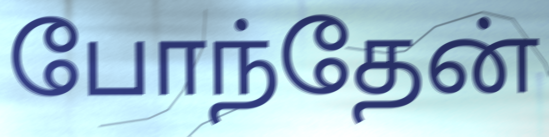
போந்தேன்